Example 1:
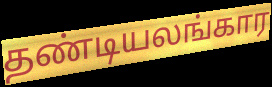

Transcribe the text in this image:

தண்டியலங்கார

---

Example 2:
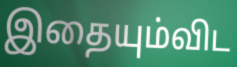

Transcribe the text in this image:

இதையும்விட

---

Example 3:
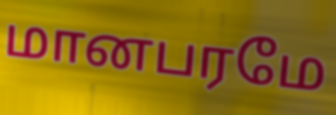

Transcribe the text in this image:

மானபரமே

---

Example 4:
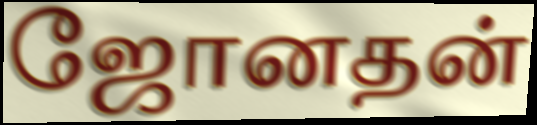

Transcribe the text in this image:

ஜோனதன்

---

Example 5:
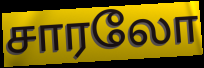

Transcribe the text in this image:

சாரலோ